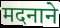
मदनाने